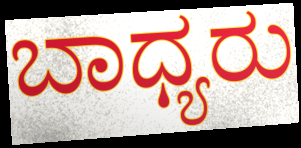
ಬಾಧ್ಯರು